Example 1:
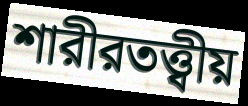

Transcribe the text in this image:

শারীরতত্ত্বীয়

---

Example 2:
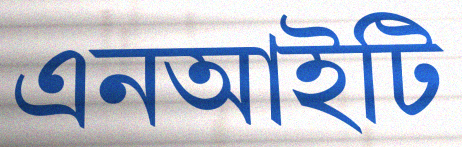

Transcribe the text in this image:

এনআইটি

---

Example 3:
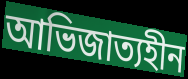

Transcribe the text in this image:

আভিজাত্যহীন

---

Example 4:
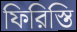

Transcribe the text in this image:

ফিরিস্তি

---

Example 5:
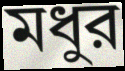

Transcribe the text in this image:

মধুর